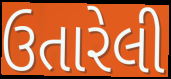
ઉતારેલી